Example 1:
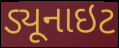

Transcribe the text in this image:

ડ્યૂનાઇટ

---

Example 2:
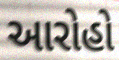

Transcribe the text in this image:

આરોહો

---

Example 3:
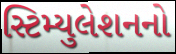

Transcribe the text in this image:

સ્ટિમ્યુલેશનનો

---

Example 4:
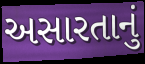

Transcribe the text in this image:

અસારતાનું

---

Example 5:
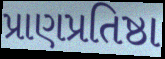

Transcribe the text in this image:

પ્રાણપ્રતિષ્ઠા